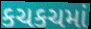
કચકચમાં